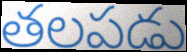
తలపడు